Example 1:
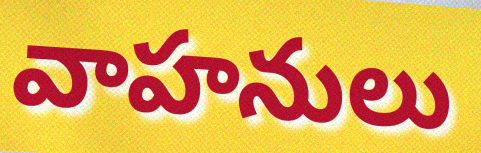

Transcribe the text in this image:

వాహనులు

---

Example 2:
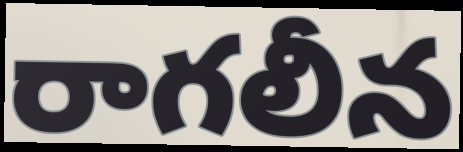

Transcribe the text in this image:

రాగలీన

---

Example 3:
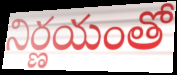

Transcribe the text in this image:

నిర్ణయంతో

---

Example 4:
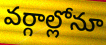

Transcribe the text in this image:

వర్గాల్లోనూ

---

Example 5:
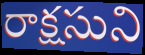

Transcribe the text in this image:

రాక్షసుని